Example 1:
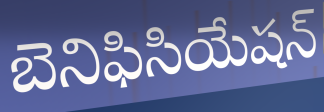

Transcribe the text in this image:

బెనిఫిసియేషన్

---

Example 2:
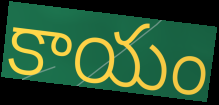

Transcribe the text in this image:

కాయం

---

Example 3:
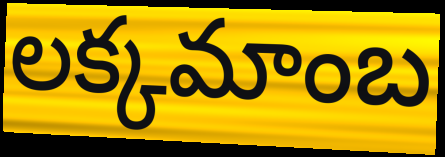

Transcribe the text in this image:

లక్కమాంబ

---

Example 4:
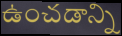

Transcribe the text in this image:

ఉంచడాన్ని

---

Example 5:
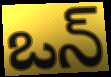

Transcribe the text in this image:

ఒన్